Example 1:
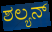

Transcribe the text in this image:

ಶಲ್ಯನ್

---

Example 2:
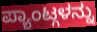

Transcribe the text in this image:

ಪ್ಯಾಂಟ್ಗಳನ್ನು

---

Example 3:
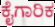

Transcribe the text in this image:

ಕೈಗಾರಿಕ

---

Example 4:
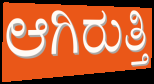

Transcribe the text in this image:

ಆಗಿರುತ್ತಿ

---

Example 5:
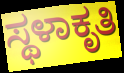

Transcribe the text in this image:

ಸ್ಥಳಾಕೃತಿ